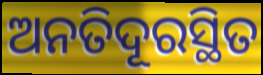
ଅନତିଦୂରସ୍ଥିତ